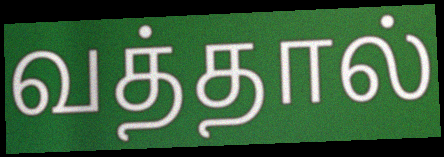
வத்தால்